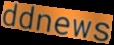
ddnews